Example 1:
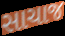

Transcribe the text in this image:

સાચાજ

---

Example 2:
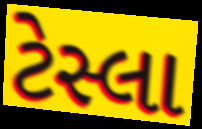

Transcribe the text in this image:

ટેસ્લા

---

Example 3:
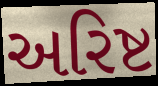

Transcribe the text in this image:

અરિષ્ટ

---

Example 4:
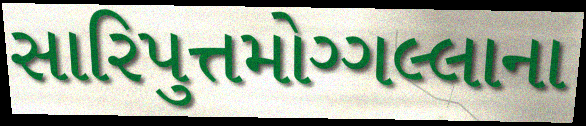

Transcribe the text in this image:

સારિપુત્તમોગ્ગલ્લાના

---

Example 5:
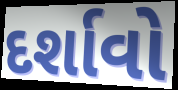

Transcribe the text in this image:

દર્શાવો